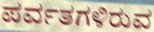
ಪರ್ವತಗಳಿರುವ